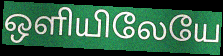
ஒளியிலேயே